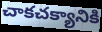
చాకచక్యానికి